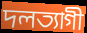
দলত্যাগী